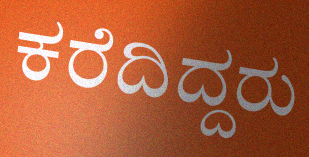
ಕರೆದಿದ್ದರು